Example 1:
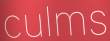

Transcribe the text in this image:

culms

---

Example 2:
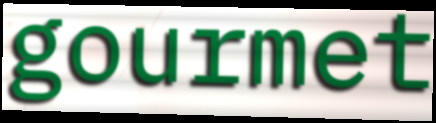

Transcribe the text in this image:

gourmet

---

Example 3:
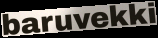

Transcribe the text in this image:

baruvekki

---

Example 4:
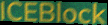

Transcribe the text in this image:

ICEBlock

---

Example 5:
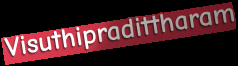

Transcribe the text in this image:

Visuthipradittharam